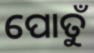
ପୋତୁଁ